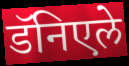
डॅनिएले